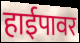
हाईपावर